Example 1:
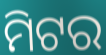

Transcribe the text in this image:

ମିଟର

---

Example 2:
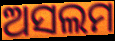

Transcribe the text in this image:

ଅସଲମ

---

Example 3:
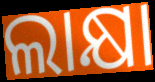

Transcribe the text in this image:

ଲାକ୍ଷା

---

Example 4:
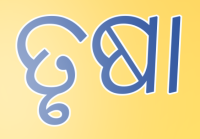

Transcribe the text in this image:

ତୃଷା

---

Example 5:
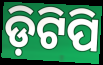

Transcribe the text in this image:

ଡ଼ିଟିପି